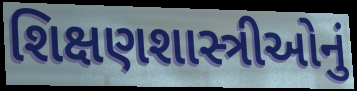
શિક્ષણશાસ્ત્રીઓનું